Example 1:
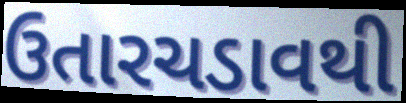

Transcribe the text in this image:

ઉતારચડાવથી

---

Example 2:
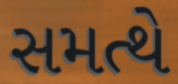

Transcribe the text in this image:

સમત્થે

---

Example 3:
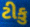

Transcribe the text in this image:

ટીકુ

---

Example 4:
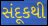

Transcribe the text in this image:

સંદૂકથી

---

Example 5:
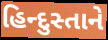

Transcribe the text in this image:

હિન્દુસ્તાને